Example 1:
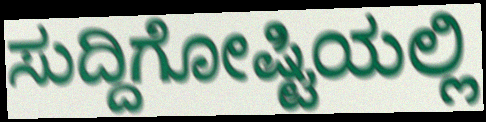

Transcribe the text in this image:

ಸುದ್ದಿಗೋಷ್ಟಿಯಲ್ಲಿ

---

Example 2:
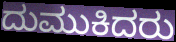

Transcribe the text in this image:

ದುಮುಕಿದರು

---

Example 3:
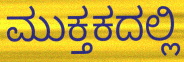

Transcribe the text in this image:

ಮುಕ್ತಕದಲ್ಲಿ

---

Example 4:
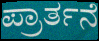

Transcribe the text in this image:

ಪ್ರಾರ್ತನೆ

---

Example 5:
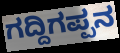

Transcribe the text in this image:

ಗದ್ದಿಗಪ್ಪನ